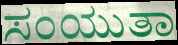
ಸಂಯುತಾ